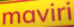
maviri